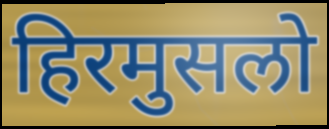
हिरमुसलो